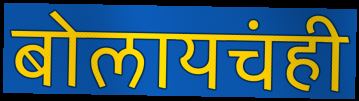
बोलायचंही